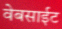
वेबसाईट